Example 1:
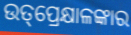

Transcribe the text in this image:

ଉତ୍‌ପ୍ରେକ୍ଷାଳଙ୍କାର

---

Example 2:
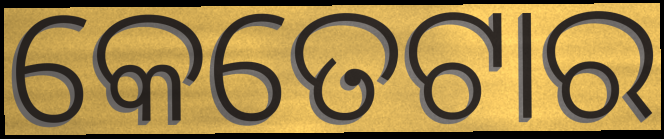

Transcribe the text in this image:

କେତେଟାର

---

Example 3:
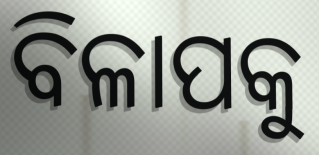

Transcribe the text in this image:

ବିଳାପକୁ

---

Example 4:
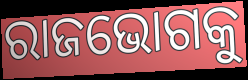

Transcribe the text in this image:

ରାଜଭୋଗକୁ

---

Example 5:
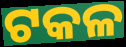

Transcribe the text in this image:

ଟକଳ